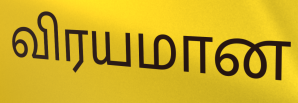
விரயமான